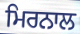
ਮਿਰਨਾਲ